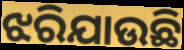
ଝରିଯାଉଛି